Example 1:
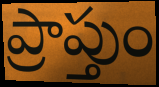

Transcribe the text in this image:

ప్రాప్తుం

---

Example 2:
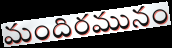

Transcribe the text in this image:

మందిరమునం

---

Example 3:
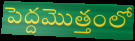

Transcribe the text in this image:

పెద్దమొత్తంలో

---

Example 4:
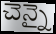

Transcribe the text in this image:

చెన్నై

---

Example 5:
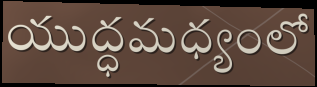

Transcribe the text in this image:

యుద్ధమధ్యంలో